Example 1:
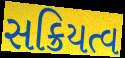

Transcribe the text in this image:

સક્રિયત્વ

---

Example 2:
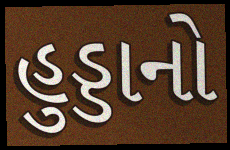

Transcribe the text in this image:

હુડ્ડાનો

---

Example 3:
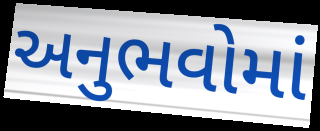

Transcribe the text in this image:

અનુભવોમાં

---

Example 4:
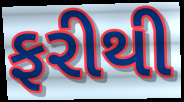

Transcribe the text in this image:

ફરીથી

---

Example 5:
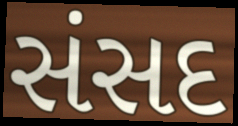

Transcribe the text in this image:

સંસદ